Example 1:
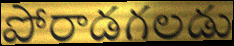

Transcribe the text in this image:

పోరాడగలడు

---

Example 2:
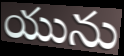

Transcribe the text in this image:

యును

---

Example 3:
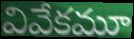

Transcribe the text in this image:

వివేకమూ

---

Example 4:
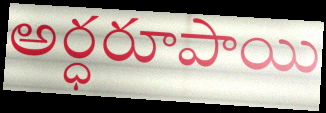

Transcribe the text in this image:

అర్ధరూపాయి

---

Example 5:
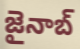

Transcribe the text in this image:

జైనాబ్